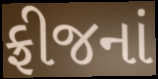
ફ્રીજનાં